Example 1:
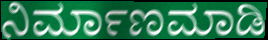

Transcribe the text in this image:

ನಿರ್ಮಾಣಮಾಡಿ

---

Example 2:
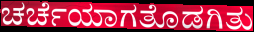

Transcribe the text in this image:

ಚರ್ಚೆಯಾಗತೊಡಗಿತು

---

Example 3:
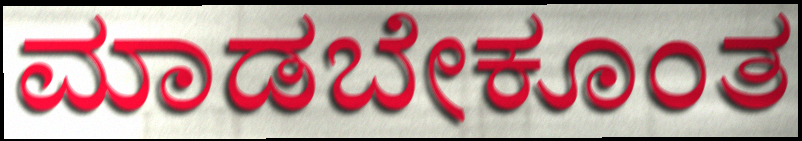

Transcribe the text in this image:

ಮಾಡಬೇಕೂಂತ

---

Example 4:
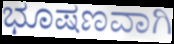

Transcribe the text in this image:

ಭೂಷಣವಾಗಿ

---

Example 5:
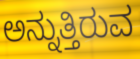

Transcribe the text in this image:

ಅನ್ನುತ್ತಿರುವ